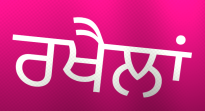
ਰਖੈਲਾਂ